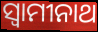
ସ୍ୱାମୀନାଥ